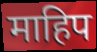
माहिप